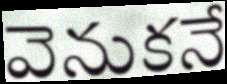
వెనుకనే